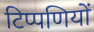
टिप्पणियों